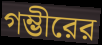
গম্ভীরের